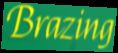
Brazing